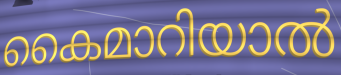
കൈമാറിയാൽ